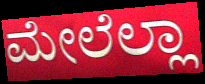
ಮೇಲೆಲ್ಲಾ